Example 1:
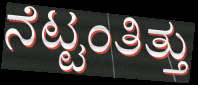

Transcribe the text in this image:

ನೆಟ್ಟಂತಿತ್ತು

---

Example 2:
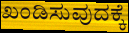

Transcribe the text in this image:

ಖಂಡಿಸುವುದಕ್ಕೆ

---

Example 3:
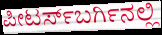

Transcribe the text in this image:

ಪೀಟರ್ಸ್‍ಬರ್ಗಿನಲ್ಲಿ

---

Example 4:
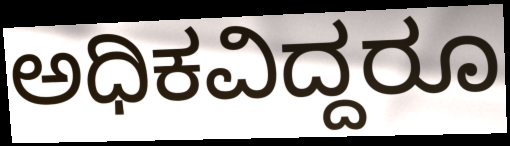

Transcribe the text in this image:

ಅಧಿಕವಿದ್ದರೂ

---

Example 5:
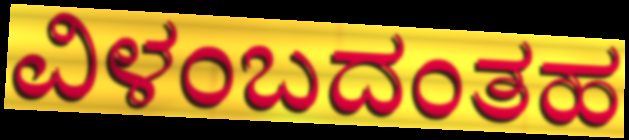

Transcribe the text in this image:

ವಿಳಂಬದಂತಹ